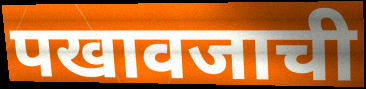
पखावजाची